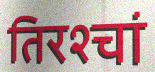
तिरश्चां